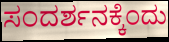
ಸಂದರ್ಶನಕ್ಕೆಂದು